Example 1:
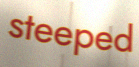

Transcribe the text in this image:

steeped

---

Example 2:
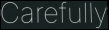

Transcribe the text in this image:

Carefully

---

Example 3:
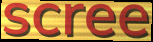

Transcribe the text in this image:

scree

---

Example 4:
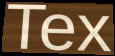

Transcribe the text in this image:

Tex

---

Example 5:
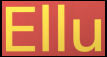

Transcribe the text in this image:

Ellu